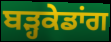
ਬੜ੍ਹਕੇਡਾਂਗ